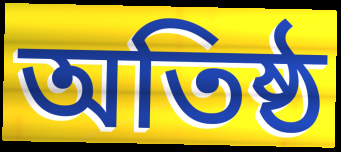
অতিষ্ঠ